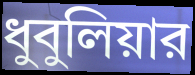
ধুবুলিয়ার